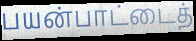
பயன்பாட்டைத்